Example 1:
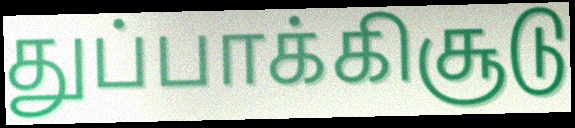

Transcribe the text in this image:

துப்பாக்கிசூடு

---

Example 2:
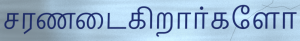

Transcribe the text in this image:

சரணடைகிறார்களோ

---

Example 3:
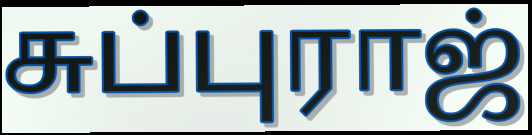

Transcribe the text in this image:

சுப்புராஜ்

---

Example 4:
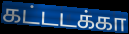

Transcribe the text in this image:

கட்டடக்கா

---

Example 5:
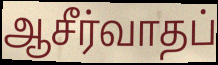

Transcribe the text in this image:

ஆசீர்வாதப்